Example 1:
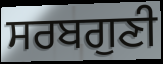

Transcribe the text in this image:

ਸਰਬਗੁਣੀ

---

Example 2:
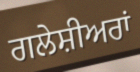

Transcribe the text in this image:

ਗਲੇਸ਼ੀਅਰਾਂ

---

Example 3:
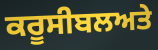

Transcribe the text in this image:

ਕਰੂਸੀਬਲਅਤੇ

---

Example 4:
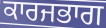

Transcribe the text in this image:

ਕਾਰਜਭਾਗ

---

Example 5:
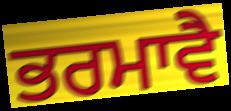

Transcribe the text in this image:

ਭਰਮਾਵੈ